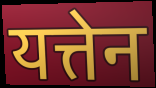
यत्तेन